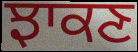
ਝਾਕਣ